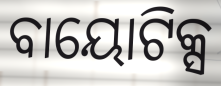
ବାୟୋଟିକ୍ସ